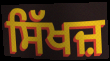
ਸਿੱਖਜ਼